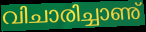
വിചാരിച്ചാണു്